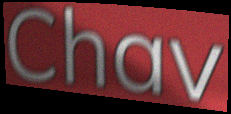
Chav